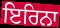
ਇਰਿਨਾ